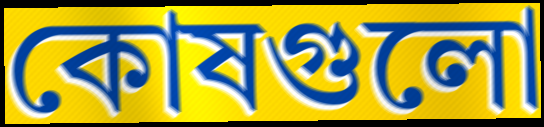
কোষগুলো